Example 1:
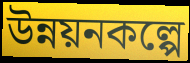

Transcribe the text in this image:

উন্নয়নকল্পে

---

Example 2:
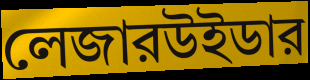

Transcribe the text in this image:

লেজারউইডার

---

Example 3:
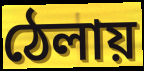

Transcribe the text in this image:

ঠেলায়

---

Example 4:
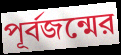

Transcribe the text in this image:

পূর্বজন্মের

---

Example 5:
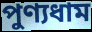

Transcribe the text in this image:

পুণ্যধাম